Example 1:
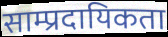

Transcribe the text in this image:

साम्प्रदायिकता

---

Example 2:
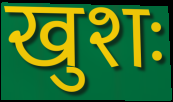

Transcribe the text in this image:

खुशः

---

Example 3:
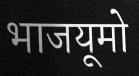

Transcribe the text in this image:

भाजयूमो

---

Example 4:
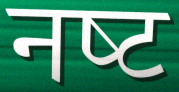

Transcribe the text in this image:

नष्‍ट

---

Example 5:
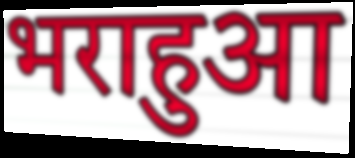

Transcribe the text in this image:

भराहुआ